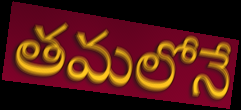
తమలోనే